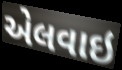
એલવાઇ